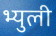
भ्युली